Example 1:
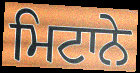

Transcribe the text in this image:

ਮਿਟਾਨੇ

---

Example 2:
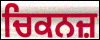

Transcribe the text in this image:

ਚਿਕਨਜ਼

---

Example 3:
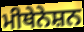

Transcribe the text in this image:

ਮੀਥੇਨੇਸ਼ਨ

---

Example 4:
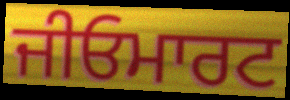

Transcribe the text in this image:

ਜੀਓਮਾਰਟ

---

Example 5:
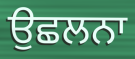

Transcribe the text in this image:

ਉਛਲਨਾ